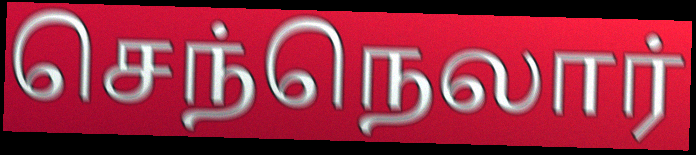
செந்நெலார்